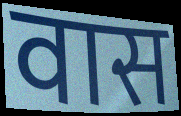
वास